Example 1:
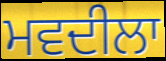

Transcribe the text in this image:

ਮਵਦੀਲਾ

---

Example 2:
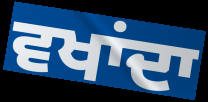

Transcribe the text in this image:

ਵਖਾਂਦਾ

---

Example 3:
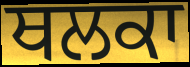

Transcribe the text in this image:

ਥਲਕਾ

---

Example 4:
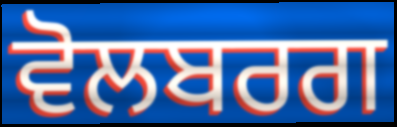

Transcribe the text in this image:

ਵੋਲਬਰਗ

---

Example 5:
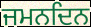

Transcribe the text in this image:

ਜਮਨਦਿਨ